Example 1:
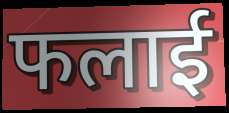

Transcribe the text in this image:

फलाई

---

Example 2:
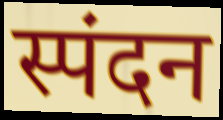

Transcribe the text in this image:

स्पंदन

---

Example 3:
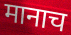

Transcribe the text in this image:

मानाच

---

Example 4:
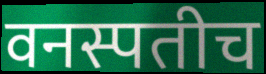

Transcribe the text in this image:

वनस्पतीच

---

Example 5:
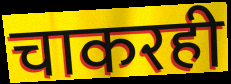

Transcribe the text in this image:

चाकरही